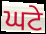
ਘਟੇ